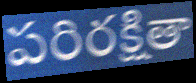
పరిరక్షితా